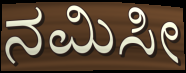
ನಮಿಸೀ